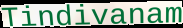
Tindivanam